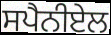
ਸਪੈਨੀਏਲ